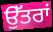
ਉੱਤਰਾਂ